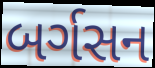
બર્ગસન